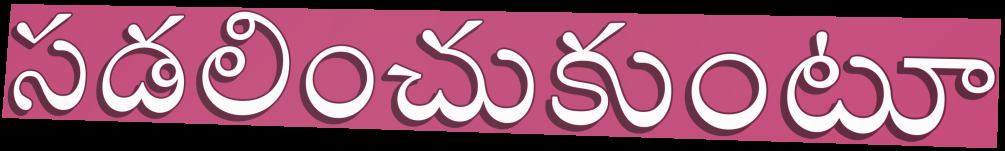
సడలించుకుంటూ